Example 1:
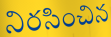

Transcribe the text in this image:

నిరసించిన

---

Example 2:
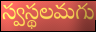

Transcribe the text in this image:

స్వస్థలమగు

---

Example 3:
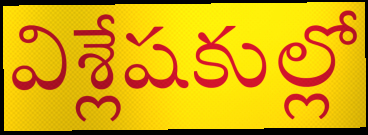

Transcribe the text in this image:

విశ్లేషకుల్లో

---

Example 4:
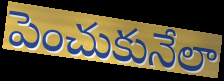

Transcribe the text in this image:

పెంచుకునేలా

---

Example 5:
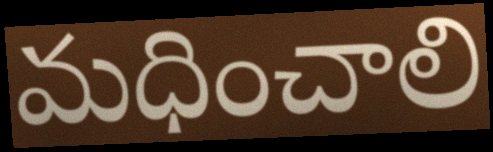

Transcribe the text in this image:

మధించాలి